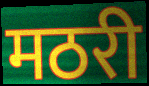
मठरी